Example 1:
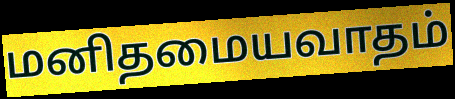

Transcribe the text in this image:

மனிதமையவாதம்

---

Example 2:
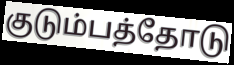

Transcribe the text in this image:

குடும்பத்தோடு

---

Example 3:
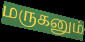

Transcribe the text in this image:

மருகனும்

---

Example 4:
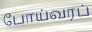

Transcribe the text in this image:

போய்வரப்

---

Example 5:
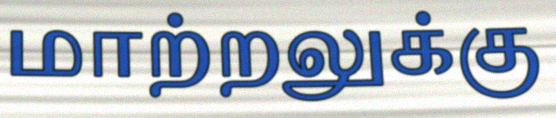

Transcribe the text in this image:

மாற்றலுக்கு